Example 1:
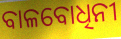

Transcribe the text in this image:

ବାଳବୋଧିନୀ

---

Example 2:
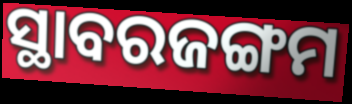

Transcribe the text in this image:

ସ୍ଥାବରଜଙ୍ଗମ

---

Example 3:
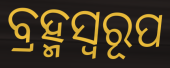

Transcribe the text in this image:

ବ୍ରହ୍ମସ୍ୱରୂପ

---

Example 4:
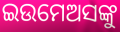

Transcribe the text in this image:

ଇଉମେଅସଙ୍କୁ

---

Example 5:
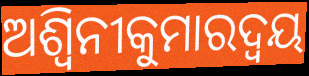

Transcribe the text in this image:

ଅଶ୍ୱିନୀକୁମାରଦ୍ୱୟ